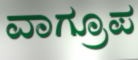
ವಾಗ್ರೂಪ